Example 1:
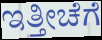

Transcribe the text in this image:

ಇತ್ತೀಚೆಗೆ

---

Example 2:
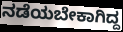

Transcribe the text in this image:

ನಡೆಯಬೇಕಾಗಿದ್ದ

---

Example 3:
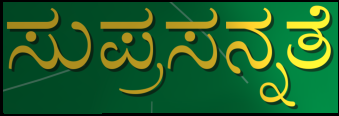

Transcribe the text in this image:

ಸುಪ್ರಸನ್ನತೆ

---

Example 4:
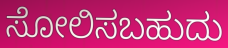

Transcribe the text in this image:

ಸೋಲಿಸಬಹುದು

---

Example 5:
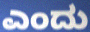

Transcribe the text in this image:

ಎಂದು